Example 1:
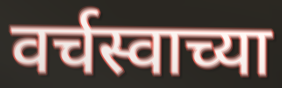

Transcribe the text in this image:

वर्चस्वाच्या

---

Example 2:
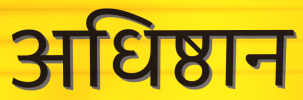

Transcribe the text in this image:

अधिष्ठान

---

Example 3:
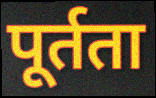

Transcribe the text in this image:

पूर्तता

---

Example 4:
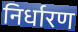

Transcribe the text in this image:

निर्धारण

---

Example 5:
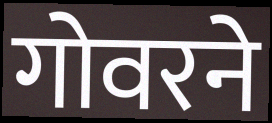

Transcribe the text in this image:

गोवरने